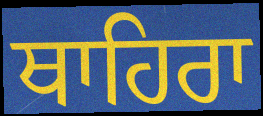
ਥਾਹਿਰਾ